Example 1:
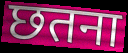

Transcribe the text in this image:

छतना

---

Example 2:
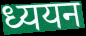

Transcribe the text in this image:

ध्ययन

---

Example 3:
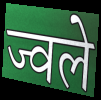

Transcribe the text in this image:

ज्वले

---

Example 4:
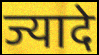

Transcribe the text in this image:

ज्यादे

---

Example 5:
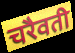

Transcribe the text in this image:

चरैवती